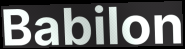
Babilon